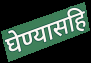
घेण्यासहि